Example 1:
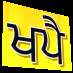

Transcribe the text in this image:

ਖਪੈ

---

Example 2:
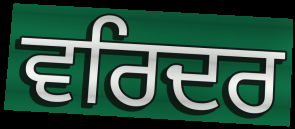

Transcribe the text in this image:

ਵਰਿਦਰ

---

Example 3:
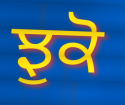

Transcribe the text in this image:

ਝੁਕੋ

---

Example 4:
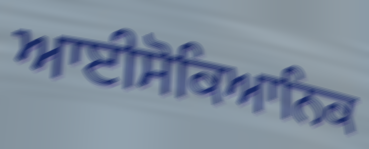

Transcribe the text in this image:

ਆਈਸੋਕਿਆਨਿਕ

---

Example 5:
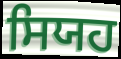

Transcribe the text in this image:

ਸਿਯਹ